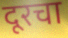
दूरचा